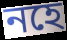
নহে